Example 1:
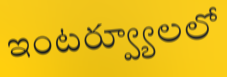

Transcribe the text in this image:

ఇంటర్వ్యూలలో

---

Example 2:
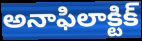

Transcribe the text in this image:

అనాఫిలాక్టిక్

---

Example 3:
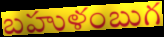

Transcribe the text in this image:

బహుళంబుగ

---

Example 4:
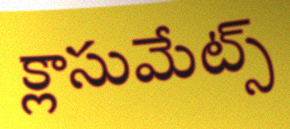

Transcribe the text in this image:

క్లాసుమేట్స్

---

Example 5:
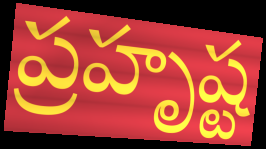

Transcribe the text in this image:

ప్రహృష్ట